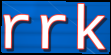
rrk